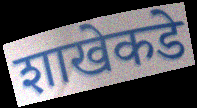
शाखेकडे